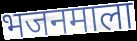
भजनमाला